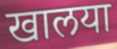
खालया